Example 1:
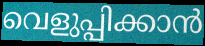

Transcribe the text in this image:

വെളുപ്പിക്കാൻ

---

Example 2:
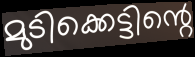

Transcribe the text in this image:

മുടിക്കെട്ടിന്റെ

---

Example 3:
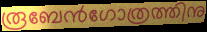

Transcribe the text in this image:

രൂബേൻഗോത്രത്തിനു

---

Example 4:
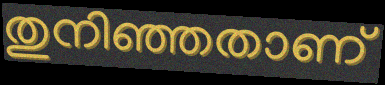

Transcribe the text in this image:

തുനിഞ്ഞതാണ്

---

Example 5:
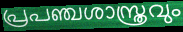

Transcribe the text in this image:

പ്രപഞ്ചശാസ്ത്രവും